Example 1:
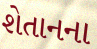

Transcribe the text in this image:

શેતાનના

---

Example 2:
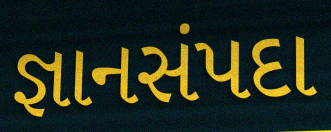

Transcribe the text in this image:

જ્ઞાનસંપદા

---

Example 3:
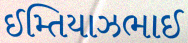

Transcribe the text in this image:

ઈમ્તિયાઝભાઈ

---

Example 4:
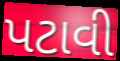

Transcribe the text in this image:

પટાવી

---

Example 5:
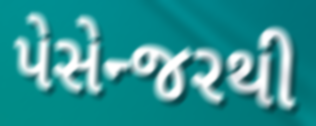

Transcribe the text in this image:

પેસેન્જરથી